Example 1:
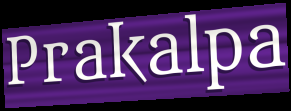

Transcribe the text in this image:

Prakalpa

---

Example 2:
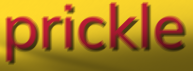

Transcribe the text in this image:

prickle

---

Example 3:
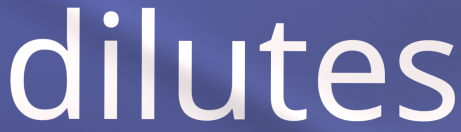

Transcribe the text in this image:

dilutes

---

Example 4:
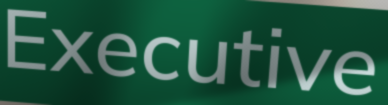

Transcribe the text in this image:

Executive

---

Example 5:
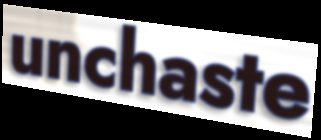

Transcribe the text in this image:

unchaste